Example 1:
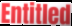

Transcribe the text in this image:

Entitled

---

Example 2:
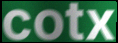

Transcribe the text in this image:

cotx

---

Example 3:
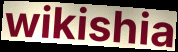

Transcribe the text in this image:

wikishia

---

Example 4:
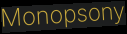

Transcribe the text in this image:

Monopsony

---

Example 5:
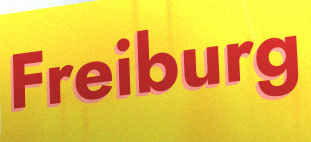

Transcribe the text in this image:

Freiburg